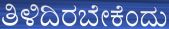
ತಿಳಿದಿರಬೇಕೆಂದು